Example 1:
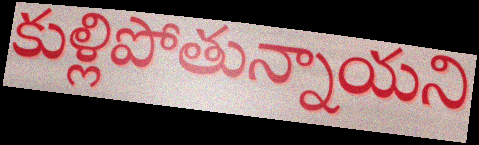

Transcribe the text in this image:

కుళ్లిపోతున్నాయని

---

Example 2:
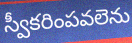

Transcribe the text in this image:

స్వీకరింపవలెను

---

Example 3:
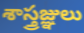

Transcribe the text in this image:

శాస్త్రజ్ఞులు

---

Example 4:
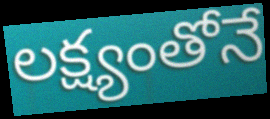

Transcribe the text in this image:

లక్ష్యంతోనే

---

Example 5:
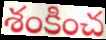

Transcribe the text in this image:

శంకించ